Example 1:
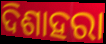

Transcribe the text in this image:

ଦିଶାହରା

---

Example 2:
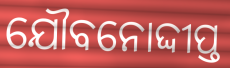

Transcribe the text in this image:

ଯୌବନୋଦ୍ଦୀପ୍ତ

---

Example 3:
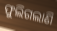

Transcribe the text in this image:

ଫୁଲିଗଲାଣି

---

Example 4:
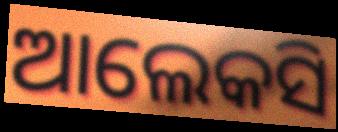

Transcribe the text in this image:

ଆଲେକସି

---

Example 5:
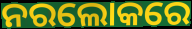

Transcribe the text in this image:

ନରଲୋକରେ